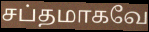
சப்தமாகவே